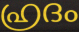
ഹ്രദം